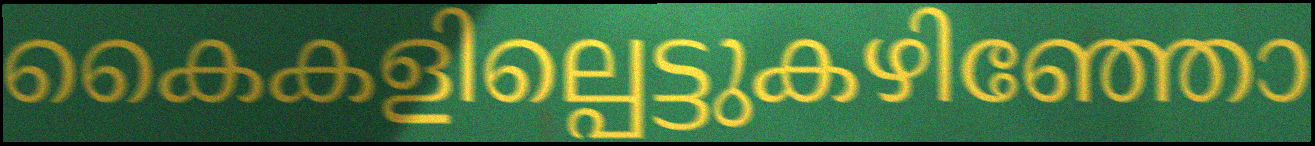
കൈകളില്പെട്ടുകഴിഞ്ഞോ